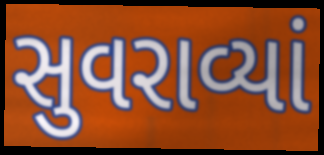
સુવરાવ્યાં